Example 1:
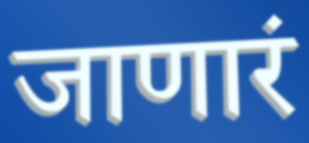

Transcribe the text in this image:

जाणारं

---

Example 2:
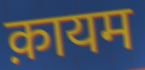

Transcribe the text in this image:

क़ायम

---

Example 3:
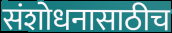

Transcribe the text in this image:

संशोधनासाठीच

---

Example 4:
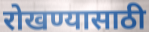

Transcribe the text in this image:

रोखण्यासाठी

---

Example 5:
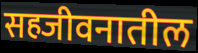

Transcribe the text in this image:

सहजीवनातील